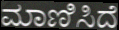
ಮಾಣಿಸಿದೆ